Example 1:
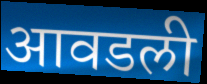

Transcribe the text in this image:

आवडली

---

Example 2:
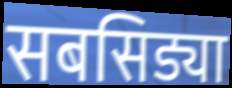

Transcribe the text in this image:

सबसिड्या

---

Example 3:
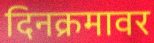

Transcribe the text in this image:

दिनक्रमावर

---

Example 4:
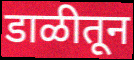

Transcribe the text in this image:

डाळीतून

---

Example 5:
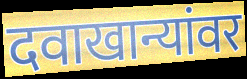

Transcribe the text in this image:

दवाखान्यांवर